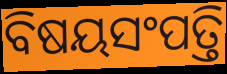
ବିଷୟସଂପତ୍ତି